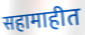
सहामाहीत